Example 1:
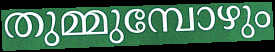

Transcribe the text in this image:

തുമ്മുമ്പോഴും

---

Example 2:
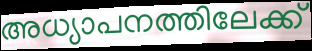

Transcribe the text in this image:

അധ്യാപനത്തിലേക്ക്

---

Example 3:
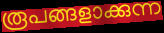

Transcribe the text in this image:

രൂപങ്ങളാക്കുന്ന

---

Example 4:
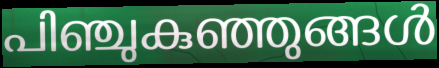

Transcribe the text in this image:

പിഞ്ചുകുഞ്ഞുങ്ങൾ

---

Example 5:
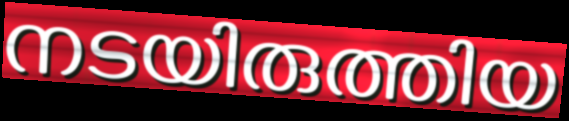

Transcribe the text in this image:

നടയിരുത്തിയ